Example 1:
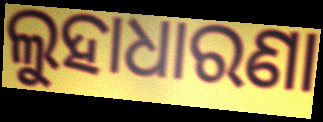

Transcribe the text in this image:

ଲୁହାଧାରଣା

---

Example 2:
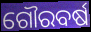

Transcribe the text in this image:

ଗୌରବର୍ଷ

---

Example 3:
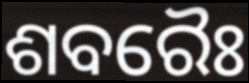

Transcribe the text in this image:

ଶବରୈଃ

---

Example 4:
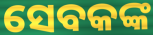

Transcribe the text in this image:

ସେବକଙ୍କ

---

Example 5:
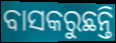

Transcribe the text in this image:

ବାସକରୁଛନ୍ତି